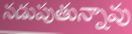
నడుపుతున్నావు